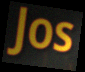
Jos